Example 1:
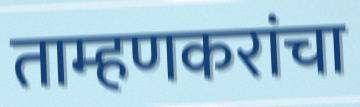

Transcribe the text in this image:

ताम्हणकरांचा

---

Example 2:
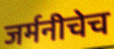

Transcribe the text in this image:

जर्मनीचेच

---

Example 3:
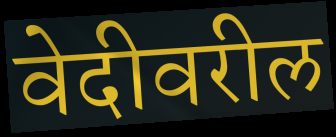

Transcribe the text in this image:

वेदीवरील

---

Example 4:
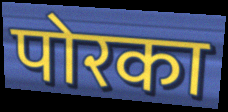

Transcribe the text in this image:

पोरका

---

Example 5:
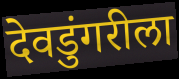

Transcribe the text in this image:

देवडुंगरीला